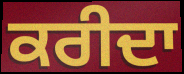
ਕਰੀਦਾ